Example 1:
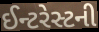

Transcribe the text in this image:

ઈન્ટરેસ્ટની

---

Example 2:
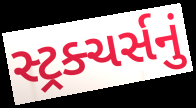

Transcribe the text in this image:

સ્ટ્રક્ચર્સનું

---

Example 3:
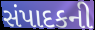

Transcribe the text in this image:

સંપાદકની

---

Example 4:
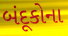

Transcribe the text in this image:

બંદૂકોના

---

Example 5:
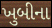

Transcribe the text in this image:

ખુબીના